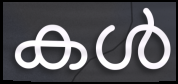
കൾ